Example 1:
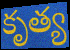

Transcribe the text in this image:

కృత్య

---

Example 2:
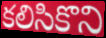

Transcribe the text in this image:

కలిసికొని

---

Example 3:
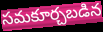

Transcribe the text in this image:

సమకూర్చబడిన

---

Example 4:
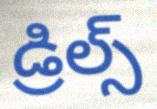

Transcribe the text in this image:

డ్రిల్స్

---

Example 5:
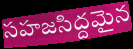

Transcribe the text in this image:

సహజసిద్దమైన